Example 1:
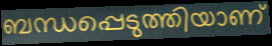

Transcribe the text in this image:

ബന്ധപ്പെടുത്തിയാണ്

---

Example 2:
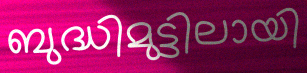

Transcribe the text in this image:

ബുദ്ധിമുട്ടിലായി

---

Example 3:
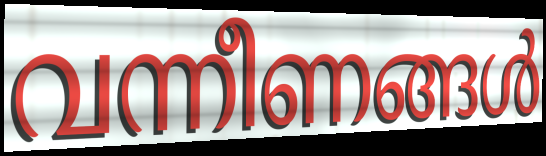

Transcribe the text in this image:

വന്നീണങ്ങൾ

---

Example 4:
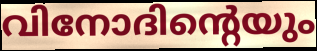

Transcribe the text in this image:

വിനോദിന്റെയും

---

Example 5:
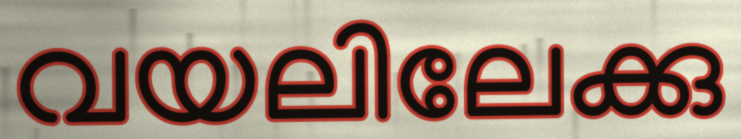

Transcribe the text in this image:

വയലിലേക്കു